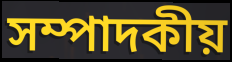
সম্পাদকীয়